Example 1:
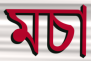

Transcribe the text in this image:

মচা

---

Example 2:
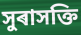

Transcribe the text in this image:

সুৰাসক্তি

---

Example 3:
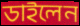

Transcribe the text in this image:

ডাইলেন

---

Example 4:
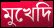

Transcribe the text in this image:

মুখেদি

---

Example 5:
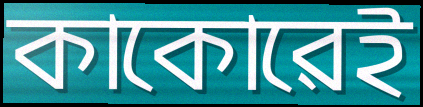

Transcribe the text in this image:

কাকোৱেই